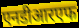
एनडीआरएफ